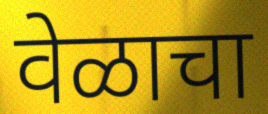
वेळाचा